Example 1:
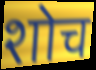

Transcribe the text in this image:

शोच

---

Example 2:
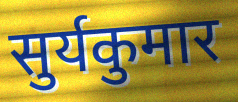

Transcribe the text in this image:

सुर्यकुमार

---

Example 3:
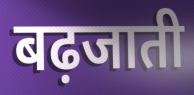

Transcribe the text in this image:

बढ़जाती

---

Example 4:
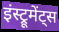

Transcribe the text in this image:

इंस्ट्रूमेंट्स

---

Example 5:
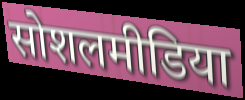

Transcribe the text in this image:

सोशलमीडिया